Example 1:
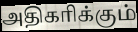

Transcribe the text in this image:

அதிகரிக்கும்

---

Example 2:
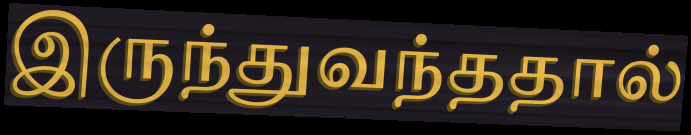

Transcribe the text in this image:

இருந்துவந்ததால்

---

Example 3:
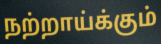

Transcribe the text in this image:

நற்றாய்க்கும்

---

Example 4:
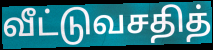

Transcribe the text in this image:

வீட்டுவசதித்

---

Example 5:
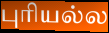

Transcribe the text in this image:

புரியல்ல